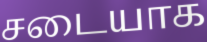
சடையாக